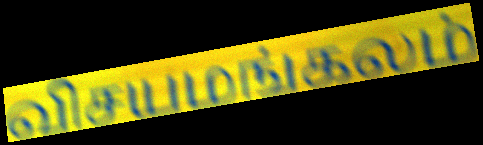
விசயமங்கலம்